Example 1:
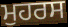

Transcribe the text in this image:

ਮੁਹਰਸ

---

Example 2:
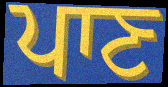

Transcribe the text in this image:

ਪਾਣ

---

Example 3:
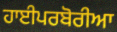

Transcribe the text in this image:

ਹਾਈਪਰਬੋਰੀਆ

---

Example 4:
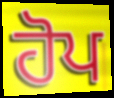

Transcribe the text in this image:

ਹੋਪ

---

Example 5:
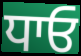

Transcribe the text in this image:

ਧਾਓ